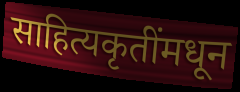
साहित्यकृतींमधून